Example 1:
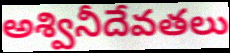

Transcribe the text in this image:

అశ్వినీదేవతలు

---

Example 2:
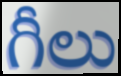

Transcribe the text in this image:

గీలు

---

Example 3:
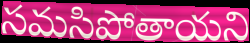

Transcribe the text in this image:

సమసిపోతాయని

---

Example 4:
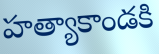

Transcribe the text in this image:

హత్యాకాండకి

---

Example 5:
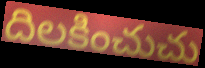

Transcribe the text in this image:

దిలకించుచు